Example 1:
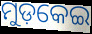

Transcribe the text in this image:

ମୁଡ଼କେଇ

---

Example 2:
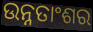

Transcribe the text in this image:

ଉନ୍ନତାଂଶର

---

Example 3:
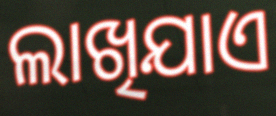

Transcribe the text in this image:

ଲାଖିଯାଏ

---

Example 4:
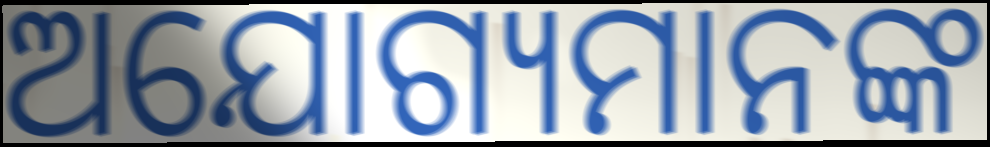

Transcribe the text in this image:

ଅଯୋଗ୍ୟମାନଙ୍କ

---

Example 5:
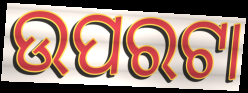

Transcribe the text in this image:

ଉପରଟା